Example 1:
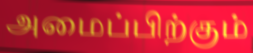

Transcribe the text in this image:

அமைப்பிற்கும்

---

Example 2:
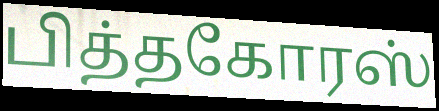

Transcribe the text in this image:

பித்தகோரஸ்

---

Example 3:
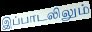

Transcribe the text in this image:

இப்பாடலிலும்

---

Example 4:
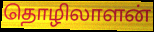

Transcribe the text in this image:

தொழிலாளன்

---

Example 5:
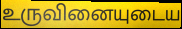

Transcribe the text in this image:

உருவினையுடைய